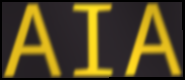
AIA